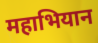
महाभियान